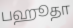
பஹூதா